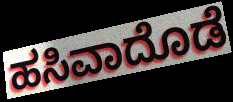
ಹಸಿವಾದೊಡೆ